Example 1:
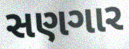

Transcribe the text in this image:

સણગાર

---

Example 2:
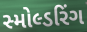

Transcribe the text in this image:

સ્મોલ્ડરિંગ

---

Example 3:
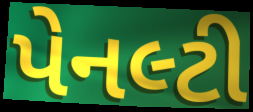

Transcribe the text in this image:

પેનલ્ટી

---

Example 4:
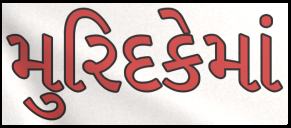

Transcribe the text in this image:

મુરિદકેમાં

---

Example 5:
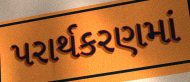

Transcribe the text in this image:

પરાર્થકરણમાં